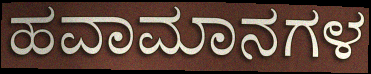
ಹವಾಮಾನಗಳ